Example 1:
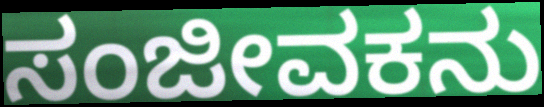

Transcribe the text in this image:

ಸಂಜೀವಕನು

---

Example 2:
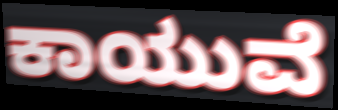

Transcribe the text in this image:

ಕಾಯುವೆ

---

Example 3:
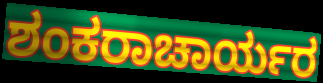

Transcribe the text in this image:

ಶಂಕರಾಚಾರ್ಯರ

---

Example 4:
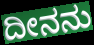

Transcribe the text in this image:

ದೀನನು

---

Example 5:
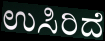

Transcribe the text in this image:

ಉಸಿರಿದೆ